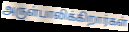
அருள்பாலிக்கிறார்கள்